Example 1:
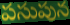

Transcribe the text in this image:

పసుపున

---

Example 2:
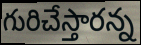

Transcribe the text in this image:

గురిచేస్తారన్న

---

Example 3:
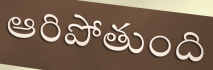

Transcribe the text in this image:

ఆరిపోతుంది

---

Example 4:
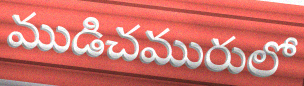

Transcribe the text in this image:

ముడిచమురులో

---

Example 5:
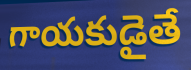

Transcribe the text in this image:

గాయకుడైతే